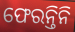
ଫେରନ୍ତିନି